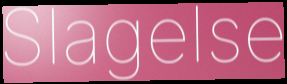
Slagelse